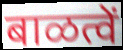
बाळत्वें